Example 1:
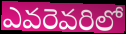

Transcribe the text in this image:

ఎవరెవరిలో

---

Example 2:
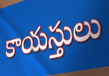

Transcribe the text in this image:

కాయస్తులు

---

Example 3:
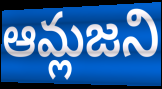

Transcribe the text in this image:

ఆమ్లజని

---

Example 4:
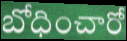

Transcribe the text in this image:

బోధించారో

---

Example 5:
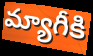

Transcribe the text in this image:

మ్యాగీకి